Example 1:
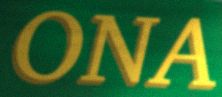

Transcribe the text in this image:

ONA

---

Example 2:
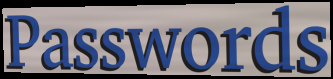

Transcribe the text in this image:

Passwords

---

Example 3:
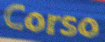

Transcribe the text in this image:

Corso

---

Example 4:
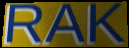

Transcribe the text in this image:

RAK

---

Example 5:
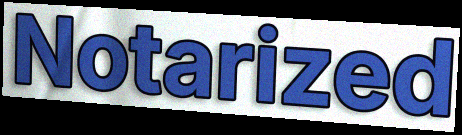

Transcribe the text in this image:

Notarized